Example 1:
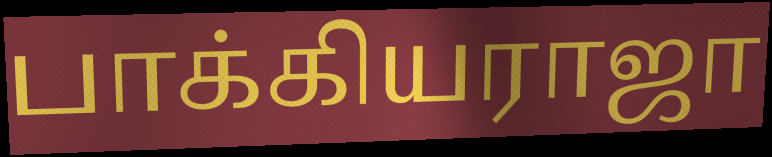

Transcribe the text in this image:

பாக்கியராஜா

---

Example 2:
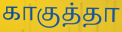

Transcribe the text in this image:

காகுத்தா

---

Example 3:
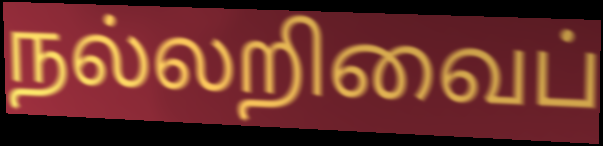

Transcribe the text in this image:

நல்லறிவைப்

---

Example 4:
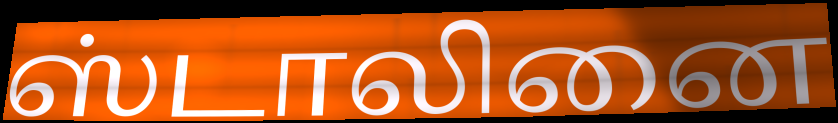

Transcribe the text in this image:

ஸ்டாலினை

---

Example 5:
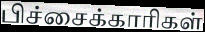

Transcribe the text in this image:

பிச்சைக்காரிகள்